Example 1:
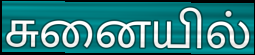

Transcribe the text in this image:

சுனையில்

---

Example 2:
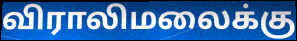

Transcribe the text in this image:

விராலிமலைக்கு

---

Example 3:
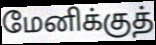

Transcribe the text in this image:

மேனிக்குத்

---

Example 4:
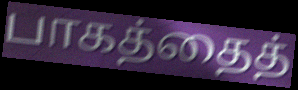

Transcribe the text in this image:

பாகத்தைத்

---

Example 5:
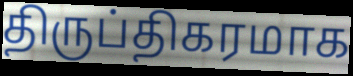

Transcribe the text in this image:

திருப்திகரமாக